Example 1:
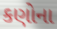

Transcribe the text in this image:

કણોના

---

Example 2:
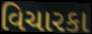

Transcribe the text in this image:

વિચારકા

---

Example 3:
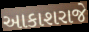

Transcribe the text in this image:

આકાશરાજે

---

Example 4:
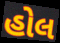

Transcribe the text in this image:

હોલ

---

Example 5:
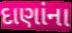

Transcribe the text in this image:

દાણાંના